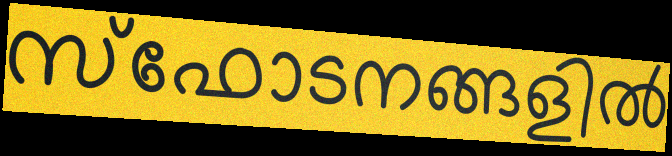
സ്ഫോടനങ്ങളിൽ